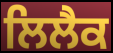
ਲਿਲੈਕ